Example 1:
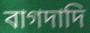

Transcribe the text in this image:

বাগদাদি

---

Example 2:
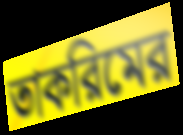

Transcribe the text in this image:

তাকরিমের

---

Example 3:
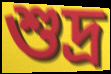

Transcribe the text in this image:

শুদ্র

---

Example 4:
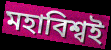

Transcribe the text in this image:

মহাবিশ্বই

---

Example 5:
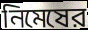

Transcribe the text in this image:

নিমেষের